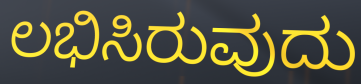
ಲಭಿಸಿರುವುದು